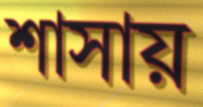
শাসায়